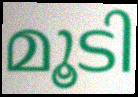
മൂടി